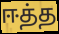
ஈத்த